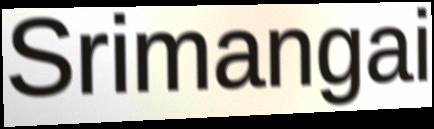
Srimangai